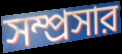
সম্প্রসার